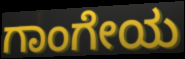
ಗಾಂಗೇಯ